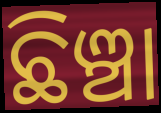
ଛିଞ୍ଚା